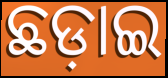
ଛଡ଼ାଇ